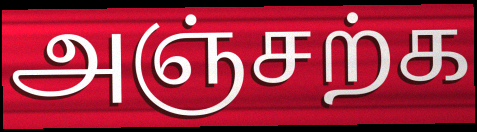
அஞ்சற்க